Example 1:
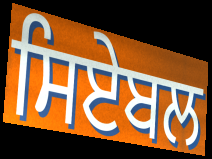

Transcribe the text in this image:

ਸਿਏਬਲ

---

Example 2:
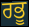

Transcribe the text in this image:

ਰਭੂ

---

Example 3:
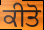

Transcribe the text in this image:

ਕੀਤੋ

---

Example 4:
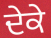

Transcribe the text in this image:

ਦੇਕੇ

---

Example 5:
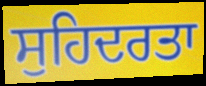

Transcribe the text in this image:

ਸੁਹਿਦਰਤਾ